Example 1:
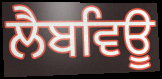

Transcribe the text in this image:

ਲੈਬਵਿਊ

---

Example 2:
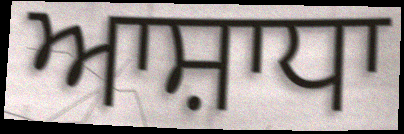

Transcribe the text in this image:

ਆਸ਼ਾਧਾ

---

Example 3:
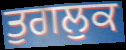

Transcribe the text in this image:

ਤੁਗਲੁਕ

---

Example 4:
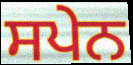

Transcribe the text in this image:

ਸਪੇਨ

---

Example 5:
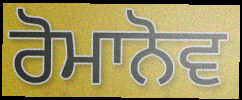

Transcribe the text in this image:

ਰੋਮਾਨੋਵ